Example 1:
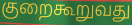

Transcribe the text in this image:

குறைகூறுவது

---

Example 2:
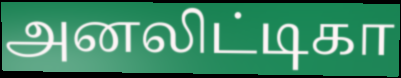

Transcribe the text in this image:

அனலிட்டிகா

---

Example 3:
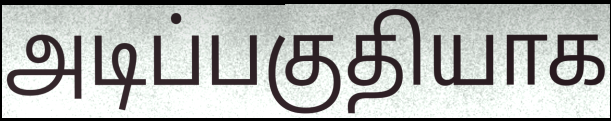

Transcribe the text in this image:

அடிப்பகுதியாக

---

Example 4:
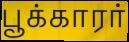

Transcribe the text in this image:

பூக்காரர்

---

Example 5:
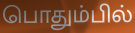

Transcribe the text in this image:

பொதும்பில்